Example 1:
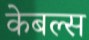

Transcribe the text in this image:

केबल्स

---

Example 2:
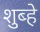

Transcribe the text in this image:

शुब्हे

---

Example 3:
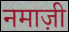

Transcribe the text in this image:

नमाज़ी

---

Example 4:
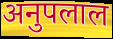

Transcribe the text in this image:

अनुपलाल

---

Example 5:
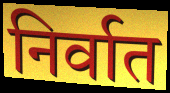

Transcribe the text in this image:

निर्वात